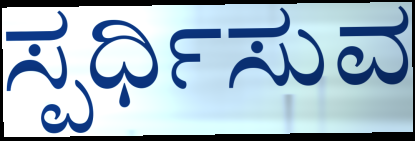
ಸ್ಪರ್ಧಿಸುವ